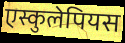
एस्कुलेपियस